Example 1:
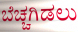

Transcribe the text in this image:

ಬೆಚ್ಚಗಿಡಲು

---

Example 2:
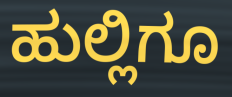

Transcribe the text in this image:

ಹುಲ್ಲಿಗೂ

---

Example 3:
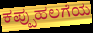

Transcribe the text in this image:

ಕಪ್ಪುಹಲಗೆಯ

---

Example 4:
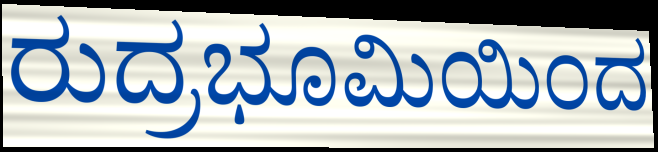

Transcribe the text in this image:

ರುದ್ರಭೂಮಿಯಿಂದ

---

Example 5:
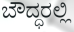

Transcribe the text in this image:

ಬೌದ್ಧರಲ್ಲಿ